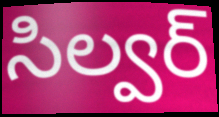
సిల్వర్